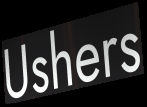
Ushers